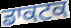
ਡਾਕਟਕ